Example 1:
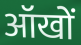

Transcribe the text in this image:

ऑखों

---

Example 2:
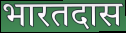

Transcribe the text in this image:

भारतदास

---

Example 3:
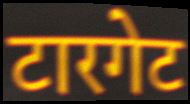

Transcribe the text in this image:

टारगेट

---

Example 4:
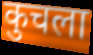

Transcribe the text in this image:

कुचला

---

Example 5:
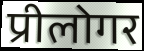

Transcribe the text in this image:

प्रीलोगर